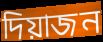
দিয়াজন